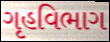
ગૃહવિભાગ